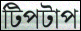
টিপটাপ